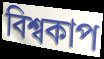
বিশ্বকাপ